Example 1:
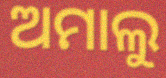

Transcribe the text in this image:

ଅମାଲୁ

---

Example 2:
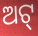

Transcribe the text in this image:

ଅଟ୍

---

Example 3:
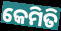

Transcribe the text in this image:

କେମିତି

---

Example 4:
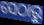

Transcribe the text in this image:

ସେଠାରୁ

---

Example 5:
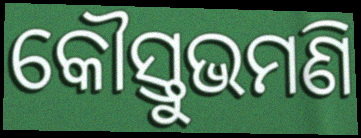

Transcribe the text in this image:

କୌସ୍ତୁଭମଣି